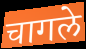
चागले